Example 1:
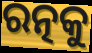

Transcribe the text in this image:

ରତ୍ନକୁ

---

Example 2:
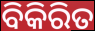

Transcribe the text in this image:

ବିକିରିତ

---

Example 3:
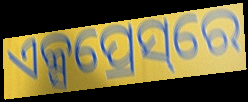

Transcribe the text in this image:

ଏକ୍ସପ୍ରେସ୍‌ରେ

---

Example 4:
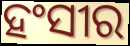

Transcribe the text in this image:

ହଂସୀର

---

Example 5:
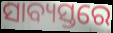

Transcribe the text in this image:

ସାବ୍ୟସ୍ତରେ